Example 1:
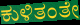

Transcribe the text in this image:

ಕುಳಿತಂತೇ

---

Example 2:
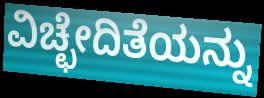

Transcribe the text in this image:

ವಿಚ್ಛೇದಿತೆಯನ್ನು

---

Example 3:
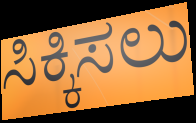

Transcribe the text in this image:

ಸಿಕ್ಕಿಸಲು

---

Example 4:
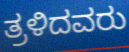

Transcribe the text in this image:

ತ್ರಳಿದವರು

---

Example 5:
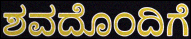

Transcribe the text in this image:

ಶವದೊಂದಿಗೆ